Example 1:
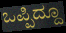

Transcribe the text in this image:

ಒಪ್ಪಿದ್ದೂ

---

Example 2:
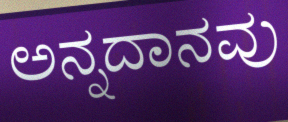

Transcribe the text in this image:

ಅನ್ನದಾನವು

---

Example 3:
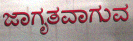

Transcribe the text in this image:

ಜಾಗೃತವಾಗುವ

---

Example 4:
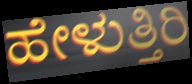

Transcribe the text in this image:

ಹೇಳುತ್ತಿರಿ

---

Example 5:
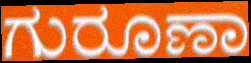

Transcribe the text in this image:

ಗುರೂಣಾ